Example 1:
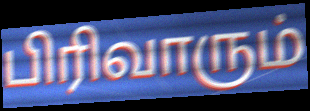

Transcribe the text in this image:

பிரிவாரும்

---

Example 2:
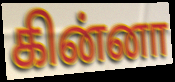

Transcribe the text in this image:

கின்னா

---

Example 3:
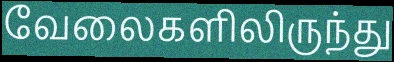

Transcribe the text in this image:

வேலைகளிலிருந்து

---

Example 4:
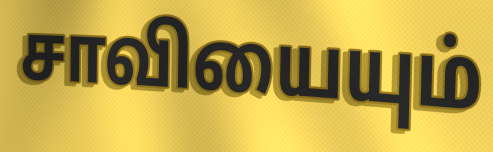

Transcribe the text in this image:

சாவியையும்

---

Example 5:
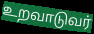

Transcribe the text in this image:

உறவாடுவர்